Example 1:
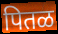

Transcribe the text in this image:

पितळ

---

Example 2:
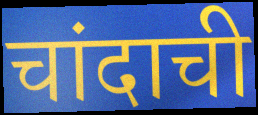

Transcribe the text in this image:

चांदाची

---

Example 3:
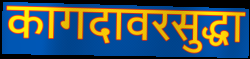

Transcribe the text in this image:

कागदावरसुद्धा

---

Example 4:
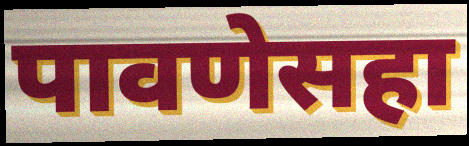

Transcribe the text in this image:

पावणेसहा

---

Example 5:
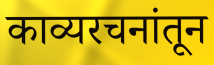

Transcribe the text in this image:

काव्यरचनांतून